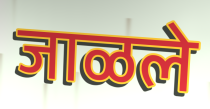
जाळले